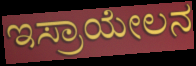
ಇಸ್ರಾಯೇಲನ